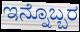
ಇನ್ನೊಬ್ಬರ